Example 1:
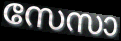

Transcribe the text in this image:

സേസാ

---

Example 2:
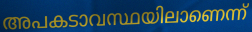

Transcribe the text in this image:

അപകടാവസ്ഥയിലാണെന്ന്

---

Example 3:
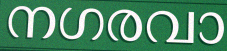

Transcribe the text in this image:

നഗരവാ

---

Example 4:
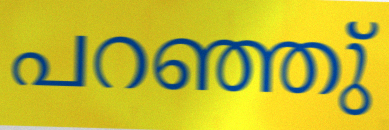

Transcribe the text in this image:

പറഞ്ഞു്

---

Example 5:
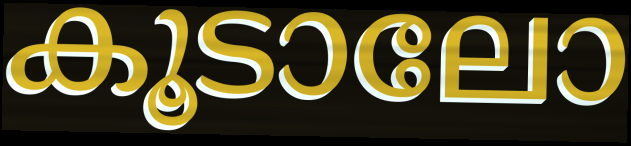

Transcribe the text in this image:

കൂടാലോ